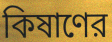
কিষাণের